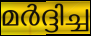
മർദ്ദിച്ച